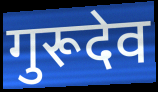
गुरूदेव